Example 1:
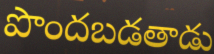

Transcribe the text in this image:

పొందబడతాడు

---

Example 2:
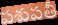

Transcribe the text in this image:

పశుపతీ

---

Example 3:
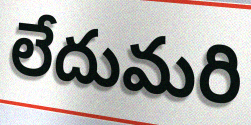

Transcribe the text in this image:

లేదుమరి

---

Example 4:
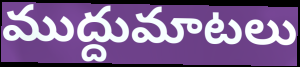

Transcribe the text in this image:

ముద్దుమాటలు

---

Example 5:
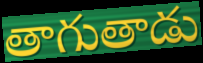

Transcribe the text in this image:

తాగుతాడు